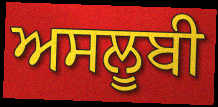
ਅਸਲੂਬੀ